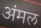
अंमल